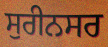
ਸੁਰੀਨਸਰ